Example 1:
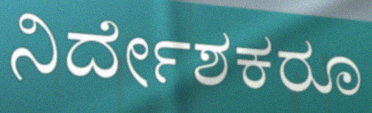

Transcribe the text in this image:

ನಿರ್ದೇಶಕರೂ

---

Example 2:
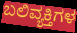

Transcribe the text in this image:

ಬಲಿವ್ಯಕ್ತಿಗಳ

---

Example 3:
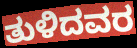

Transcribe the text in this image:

ತುಳಿದವರ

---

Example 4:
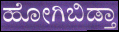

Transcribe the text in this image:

ಹೋಗಿಬಿಡ್ತಾ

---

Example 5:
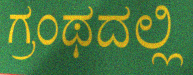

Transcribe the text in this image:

ಗ್ರಂಥದಲ್ಲಿ